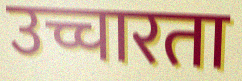
उच्चारता